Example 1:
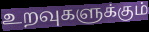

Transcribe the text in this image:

உறவுகளுக்கும்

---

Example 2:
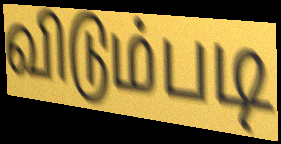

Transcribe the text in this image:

விடும்படி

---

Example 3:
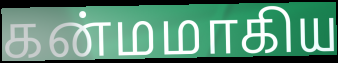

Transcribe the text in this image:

கன்மமாகிய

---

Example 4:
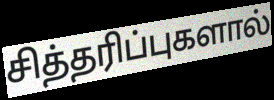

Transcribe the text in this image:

சித்தரிப்புகளால்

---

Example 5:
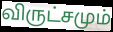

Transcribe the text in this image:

விருட்சமும்